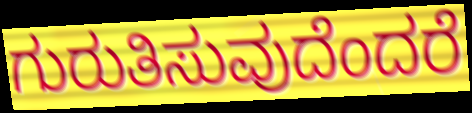
ಗುರುತಿಸುವುದೆಂದರೆ